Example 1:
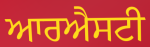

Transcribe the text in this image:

ਆਰਐਸਟੀ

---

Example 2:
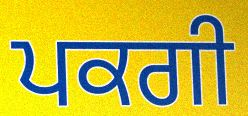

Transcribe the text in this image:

ਪਕਗੀ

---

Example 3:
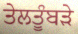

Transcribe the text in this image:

ਤੇਲਤੂੰਬੜੇ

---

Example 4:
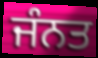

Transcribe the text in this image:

ਜੰਨਤ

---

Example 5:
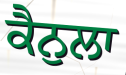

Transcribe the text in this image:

ਕੈਨੁਲਾ